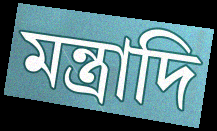
মন্ত্রাদি